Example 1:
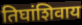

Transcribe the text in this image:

तिघांशिवाय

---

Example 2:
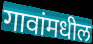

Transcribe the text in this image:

गावांमधील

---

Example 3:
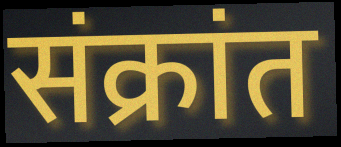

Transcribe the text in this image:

संक्रांत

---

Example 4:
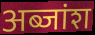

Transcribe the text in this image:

अब्जांश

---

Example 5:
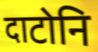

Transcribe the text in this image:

दाटोनि